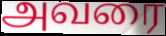
அவரை